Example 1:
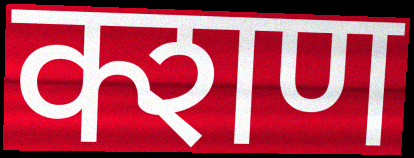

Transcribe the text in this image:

क्शण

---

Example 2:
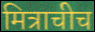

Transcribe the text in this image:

मित्राचीच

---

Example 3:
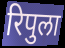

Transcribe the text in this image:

रिपुला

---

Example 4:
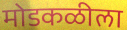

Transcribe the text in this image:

मोडकळीला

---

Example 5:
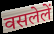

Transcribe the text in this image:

वसलेलें